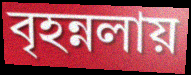
বৃহন্নলায়